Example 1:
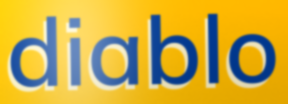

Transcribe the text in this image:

diablo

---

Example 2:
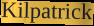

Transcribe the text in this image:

Kilpatrick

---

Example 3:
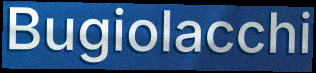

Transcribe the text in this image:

Bugiolacchi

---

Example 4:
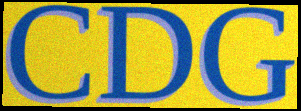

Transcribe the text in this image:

CDG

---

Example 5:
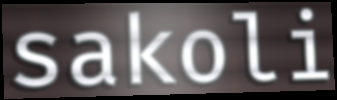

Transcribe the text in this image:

sakoli